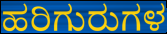
ಹರಿಗುರುಗಳ